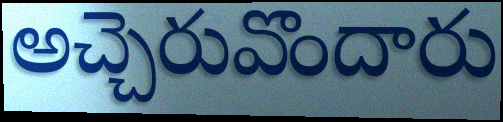
అచ్చెరువొందారు